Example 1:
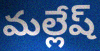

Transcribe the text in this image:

మల్లేష్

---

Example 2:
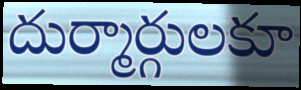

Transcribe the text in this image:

దుర్మార్గులకూ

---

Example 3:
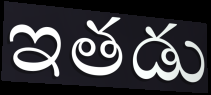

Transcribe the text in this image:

ఇతడు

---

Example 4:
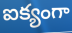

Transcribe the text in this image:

ఐక్యంగా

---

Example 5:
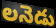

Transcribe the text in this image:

లనెడు